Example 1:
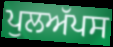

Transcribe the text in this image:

ਪੁਲਅੱਪਸ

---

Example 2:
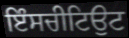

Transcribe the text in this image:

ਇੰਸਚੀਟਿਉਟ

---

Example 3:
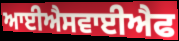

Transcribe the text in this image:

ਆਈਐਸਵਾਈਐਫ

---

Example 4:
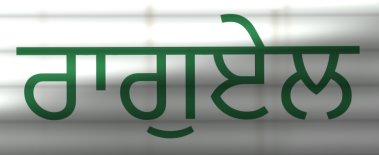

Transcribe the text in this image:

ਰਾਗੁਏਲ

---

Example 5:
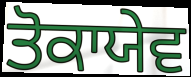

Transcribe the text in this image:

ਤੋਕਾਯੇਵ